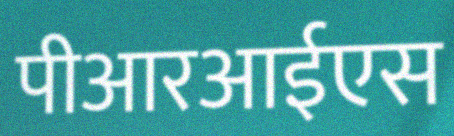
पीआरआईएस